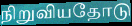
நிறுவியதோடு